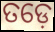
ତଡ଼େ